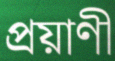
প্রয়াণী